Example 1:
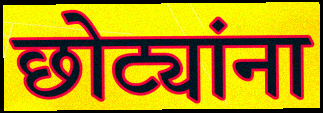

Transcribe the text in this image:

छोट्यांना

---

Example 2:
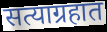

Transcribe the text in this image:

सत्याग्रहात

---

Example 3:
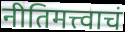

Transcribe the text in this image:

नीतिमत्त्वाचं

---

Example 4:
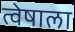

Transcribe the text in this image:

त्वेषाला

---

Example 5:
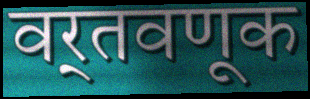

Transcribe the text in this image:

वर्तवणूक